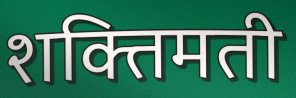
शक्तिमती